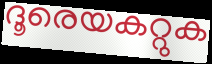
ദൂരെയകറ്റുക